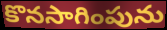
కొనసాగింపును